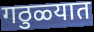
गठुळ्यात